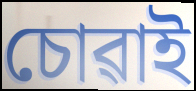
চোৱাই